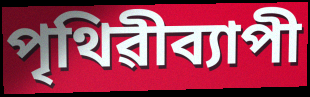
পৃথিৱীব্যাপী